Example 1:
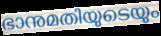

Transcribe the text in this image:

ഭാനുമതിയുടെയും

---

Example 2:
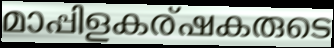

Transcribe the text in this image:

മാപ്പിളകര്ഷകരുടെ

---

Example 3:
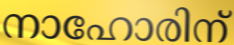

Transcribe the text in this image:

നാഹോരിന്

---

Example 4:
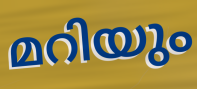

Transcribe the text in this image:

മറിയും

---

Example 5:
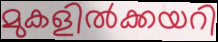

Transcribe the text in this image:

മുകളിൽക്കയറി